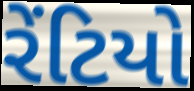
રેંટિયો